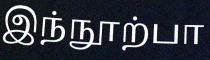
இந்நூற்பா